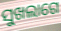
ସୁଖଲାଗେ